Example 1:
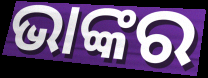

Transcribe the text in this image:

ଭାଙ୍କର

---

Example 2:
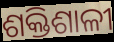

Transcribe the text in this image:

ଶକ୍ତିଶାଳୀ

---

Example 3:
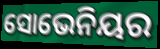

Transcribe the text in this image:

ସୋଭେନିୟର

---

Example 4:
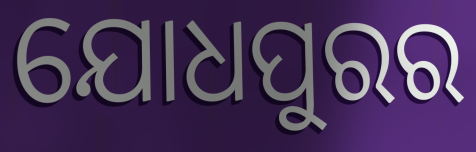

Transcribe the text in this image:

ଯୋଧପୁରର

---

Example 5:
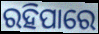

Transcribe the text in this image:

ରହିପାରେ